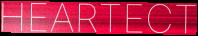
HEARTECT